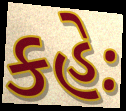
કહેઃ